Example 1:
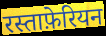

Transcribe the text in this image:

रस्ताफ़ेरियन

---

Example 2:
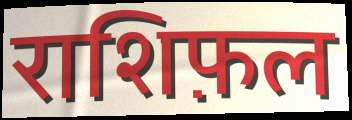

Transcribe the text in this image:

राशिफ़ल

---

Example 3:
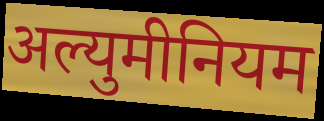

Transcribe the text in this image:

अल्युमीनियम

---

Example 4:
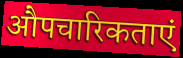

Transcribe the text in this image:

औपचारिकताएं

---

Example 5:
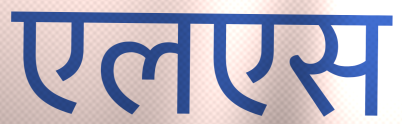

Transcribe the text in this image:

एलएस